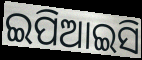
ଇପିଆଇସି